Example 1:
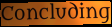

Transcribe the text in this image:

Concluding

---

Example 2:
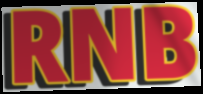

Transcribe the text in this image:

RNB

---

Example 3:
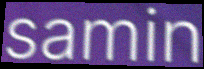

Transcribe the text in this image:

samin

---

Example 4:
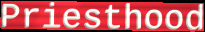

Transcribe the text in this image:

Priesthood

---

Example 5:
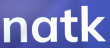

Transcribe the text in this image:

natk